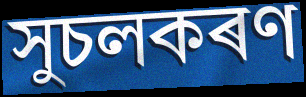
সুচলকৰণ